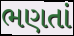
ભણતાં